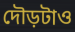
দৌড়টাও